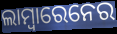
ଲାମ୍ବାରେନେର